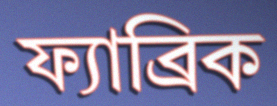
ফ্যাব্রিক